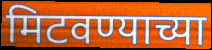
मिटवण्याच्या